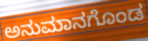
ಅನುಮಾನಗೊಂಡ